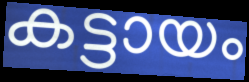
കട്ടായം